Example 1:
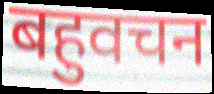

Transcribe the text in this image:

बहुवचन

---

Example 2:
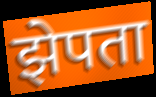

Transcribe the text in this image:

झेपता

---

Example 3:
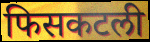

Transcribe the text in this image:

फिसकटली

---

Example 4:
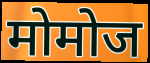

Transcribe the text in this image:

मोमोज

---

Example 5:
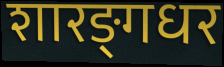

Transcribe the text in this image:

शारङ्गधर